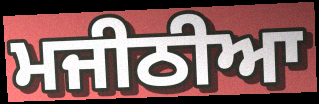
ਮਜੀਠੀਆ